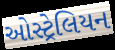
ઓસ્ટ્રેલિયન